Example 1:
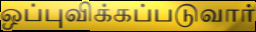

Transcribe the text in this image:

ஒப்புவிக்கப்படுவார்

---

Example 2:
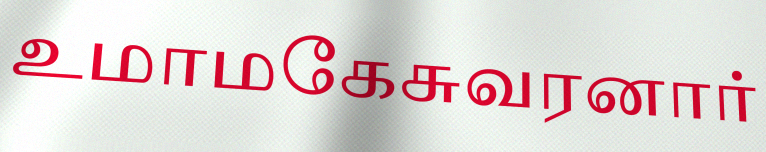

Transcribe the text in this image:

உமாமகேசுவரனார்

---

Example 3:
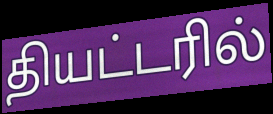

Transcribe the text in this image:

தியட்டரில்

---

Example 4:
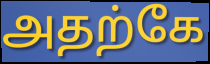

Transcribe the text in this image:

அதற்கே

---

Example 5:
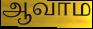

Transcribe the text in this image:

ஆவாம